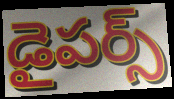
డైపర్స్